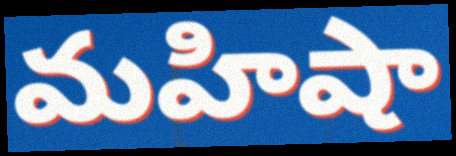
మహిషా